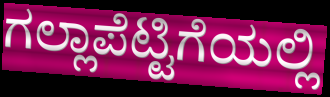
ಗಲ್ಲಾಪೆಟ್ಟಿಗೆಯಲ್ಲಿ